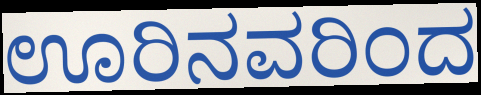
ಊರಿನವರಿಂದ